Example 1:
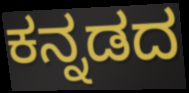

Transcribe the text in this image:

ಕನ್ನಡದ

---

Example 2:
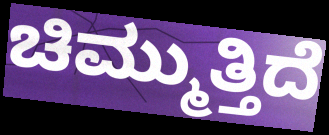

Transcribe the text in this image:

ಚಿಮ್ಮುತ್ತಿದೆ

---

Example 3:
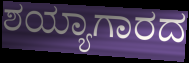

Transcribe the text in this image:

ಶಯ್ಯಾಗಾರದ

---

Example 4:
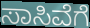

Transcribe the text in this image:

ಸಾಸಿವೆಗೆ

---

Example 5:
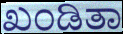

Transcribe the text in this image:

ಖಂಡಿತಾ